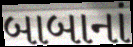
બાબાનાં